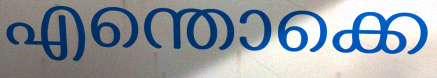
എന്തൊക്കെ